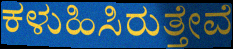
ಕಳುಹಿಸಿರುತ್ತೇವೆ